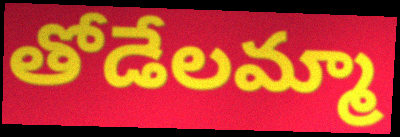
తోడేలమ్మా